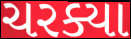
ચરક્યા